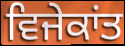
ਵਿਜੇਕਾਂਤ